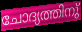
ചോദ്യത്തിനു്